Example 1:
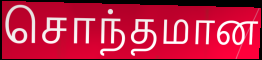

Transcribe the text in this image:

சொந்தமான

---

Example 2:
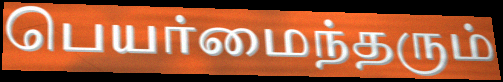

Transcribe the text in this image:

பெயர்மைந்தரும்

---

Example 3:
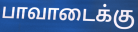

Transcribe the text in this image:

பாவாடைக்கு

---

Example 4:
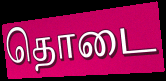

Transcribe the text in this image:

தொடை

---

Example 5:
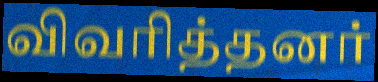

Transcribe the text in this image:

விவரித்தனர்